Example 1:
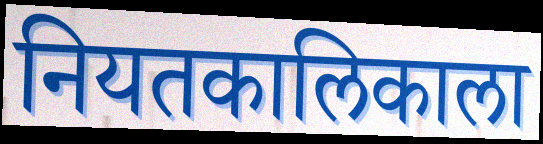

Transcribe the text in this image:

नियतकालिकाला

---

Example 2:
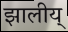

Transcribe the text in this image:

झालीय्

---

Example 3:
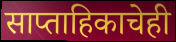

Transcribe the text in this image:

साप्ताहिकाचेही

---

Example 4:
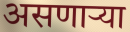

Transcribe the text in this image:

असणाऱ्या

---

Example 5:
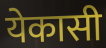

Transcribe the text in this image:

येकासी